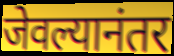
जेवल्यानंतर